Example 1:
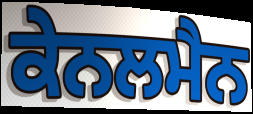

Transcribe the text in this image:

ਕੇਨਲਮੈਨ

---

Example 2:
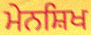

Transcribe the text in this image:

ਮੇਨਸ਼ਿਖ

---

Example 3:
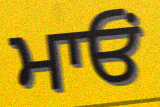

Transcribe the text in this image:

ਮਾਓਂ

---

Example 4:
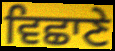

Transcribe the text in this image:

ਵਿਛਾਣੇ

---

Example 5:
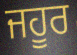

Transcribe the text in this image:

ਜਹੂਰ